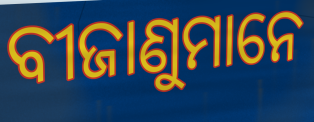
ବୀଜାଣୁମାନେ